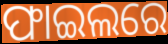
ଫାଇଲରେ